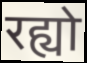
रह्यो